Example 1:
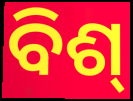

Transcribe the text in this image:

ବିଶ୍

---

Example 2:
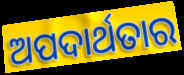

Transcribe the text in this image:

ଅପଦାର୍ଥତାର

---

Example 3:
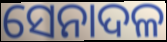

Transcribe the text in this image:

ସେନାଦଳ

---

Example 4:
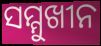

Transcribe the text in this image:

ସମ୍ମୁଖୀନ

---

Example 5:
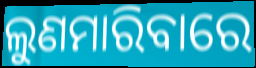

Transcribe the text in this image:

ଲୁଣମାରିବାରେ